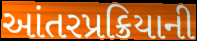
આંતરપ્રક્રિયાની